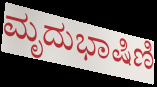
ಮೃದುಭಾಷಿಣಿ